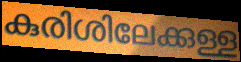
കുരിശിലേക്കുള്ള